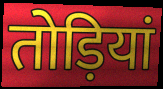
तोड़ियां